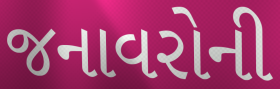
જનાવરોની